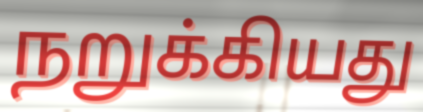
நறுக்கியது